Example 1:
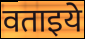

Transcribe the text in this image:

वताइये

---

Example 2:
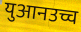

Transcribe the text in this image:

युआनउच्च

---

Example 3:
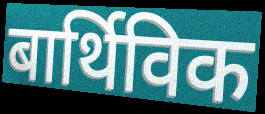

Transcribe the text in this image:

बार्थिविक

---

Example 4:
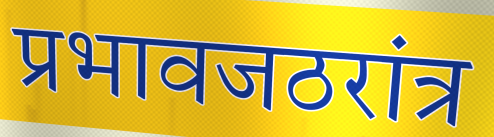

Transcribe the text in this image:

प्रभावजठरांत्र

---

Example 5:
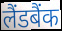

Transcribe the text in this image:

लैंडबैंक